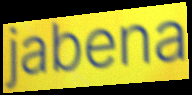
jabena